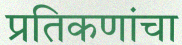
प्रतिकणांचा